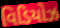
વિડિયોઝ